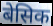
बेसिक